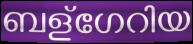
ബള്ഗേറിയ